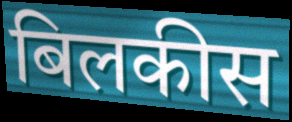
बिलकीस